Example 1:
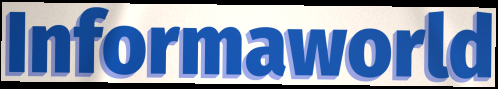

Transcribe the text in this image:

Informaworld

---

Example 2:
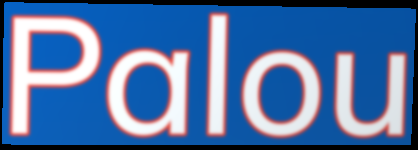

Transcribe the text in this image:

Palou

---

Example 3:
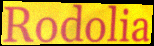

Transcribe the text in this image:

Rodolia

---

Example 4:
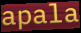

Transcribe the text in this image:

apala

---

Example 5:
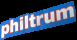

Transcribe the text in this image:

philtrum